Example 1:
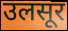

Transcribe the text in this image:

उलसूर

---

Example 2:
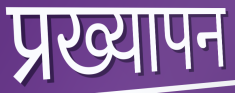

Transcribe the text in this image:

प्रख्यापन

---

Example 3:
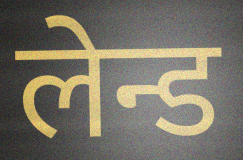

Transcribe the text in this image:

लेन्ड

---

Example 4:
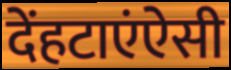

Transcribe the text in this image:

देंहटाएंऐसी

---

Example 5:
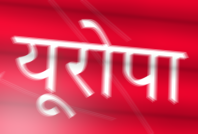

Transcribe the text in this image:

यूरोपा